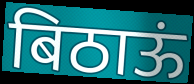
बिठाऊं